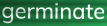
germinate